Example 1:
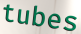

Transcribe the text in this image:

tubes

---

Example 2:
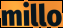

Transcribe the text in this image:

millo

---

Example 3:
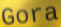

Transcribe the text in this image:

Gora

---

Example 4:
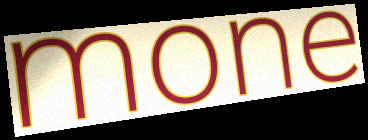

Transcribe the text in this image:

mone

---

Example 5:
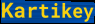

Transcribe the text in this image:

Kartikey